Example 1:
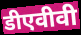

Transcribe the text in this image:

डीएवीवी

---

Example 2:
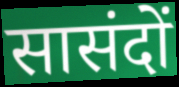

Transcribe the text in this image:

सासंदों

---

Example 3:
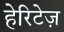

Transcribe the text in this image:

हेरिटेज़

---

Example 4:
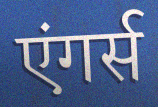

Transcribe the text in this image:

एंगर्स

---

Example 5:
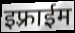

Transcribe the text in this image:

इफ़्राईम